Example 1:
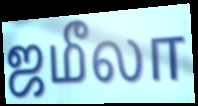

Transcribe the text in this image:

ஜமீலா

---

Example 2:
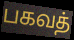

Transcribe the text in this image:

பகவத்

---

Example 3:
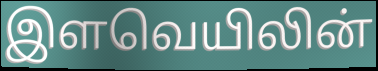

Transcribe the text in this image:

இளவெயிலின்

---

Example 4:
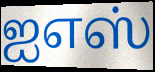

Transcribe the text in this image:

ஐஎஸ்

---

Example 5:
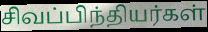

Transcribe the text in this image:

சிவப்பிந்தியர்கள்